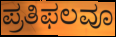
ಪ್ರತಿಫಲವೂ